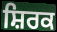
ਸ਼ਿਰਕ